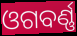
ଓଗବର୍ଣ୍ଣ